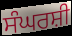
ਸੰਘਰਸ਼ੀ